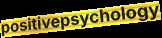
positivepsychology